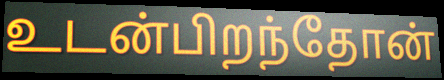
உடன்பிறந்தோன்